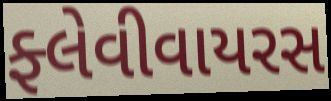
ફ્લેવીવાયરસ